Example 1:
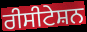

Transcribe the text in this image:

ਰੀਸੀਟੇਸ਼ਨ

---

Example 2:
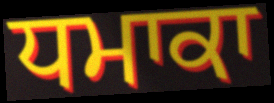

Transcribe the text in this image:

ਧਮਾਕਾ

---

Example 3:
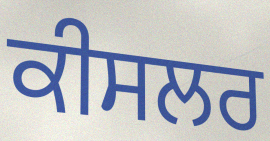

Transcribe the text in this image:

ਕੀਸਲਰ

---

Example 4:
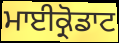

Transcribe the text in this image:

ਮਾਈਕ੍ਰੋਡਾਟ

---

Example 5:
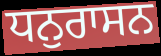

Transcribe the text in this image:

ਧਨੁਰਾਸਨ